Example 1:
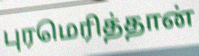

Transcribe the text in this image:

புரமெரித்தான்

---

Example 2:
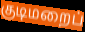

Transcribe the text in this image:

குடிமறைப்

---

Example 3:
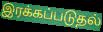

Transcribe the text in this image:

இரக்கப்படுதல்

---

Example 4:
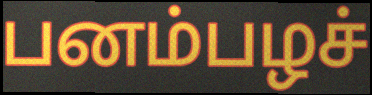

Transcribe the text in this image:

பனம்பழச்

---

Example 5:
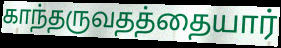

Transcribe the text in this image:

காந்தருவதத்தையார்